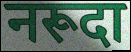
नरूदा